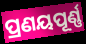
ପ୍ରଣୟପୂର୍ଣ୍ଣ